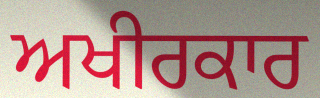
ਅਖੀਰਕਾਰ